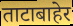
ताटाबाहेर